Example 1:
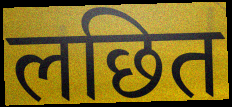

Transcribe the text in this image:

लछित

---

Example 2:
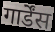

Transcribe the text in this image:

गार्डेंस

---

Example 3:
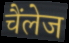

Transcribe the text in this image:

चैंलेज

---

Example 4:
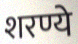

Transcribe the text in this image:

शरण्ये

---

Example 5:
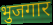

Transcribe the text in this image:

भुजगार